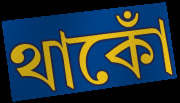
থাকোঁ